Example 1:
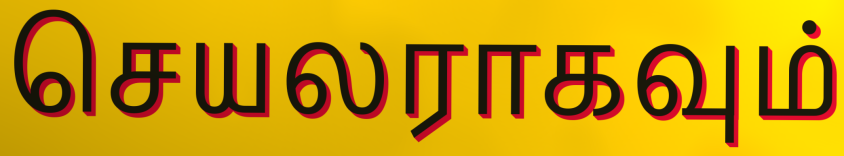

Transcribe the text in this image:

செயலராகவும்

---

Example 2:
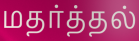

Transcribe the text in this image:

மதர்த்தல்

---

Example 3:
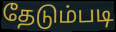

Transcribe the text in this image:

தேடும்படி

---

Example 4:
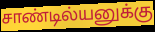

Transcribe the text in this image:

சாண்டில்யனுக்கு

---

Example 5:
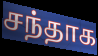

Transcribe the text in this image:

சந்தாக